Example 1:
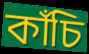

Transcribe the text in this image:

কাঁচি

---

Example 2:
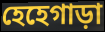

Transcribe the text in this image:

হেহেগাড়া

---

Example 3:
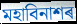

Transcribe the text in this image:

মহাবিনাশৰ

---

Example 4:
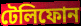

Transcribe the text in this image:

টেলিফোন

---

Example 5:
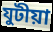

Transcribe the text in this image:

যুটীয়া